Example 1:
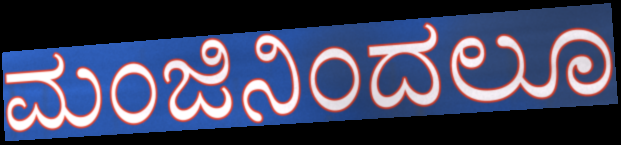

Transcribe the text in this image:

ಮಂಜಿನಿಂದಲೂ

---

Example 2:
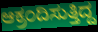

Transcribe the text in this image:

ಆಕ್ರಂದಿಸುತ್ತಿದ್ದ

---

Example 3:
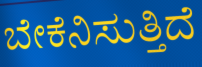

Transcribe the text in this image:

ಬೇಕೆನಿಸುತ್ತಿದೆ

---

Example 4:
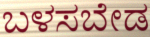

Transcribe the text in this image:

ಬಳಸಬೇಡ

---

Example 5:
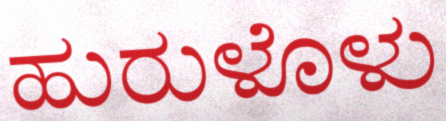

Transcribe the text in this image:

ಹುರುಳೊಳು